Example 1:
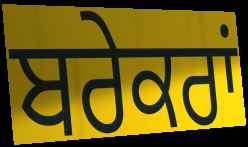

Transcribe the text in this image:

ਬਰੇਕਰਾਂ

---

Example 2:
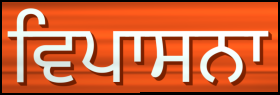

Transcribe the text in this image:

ਵਿਪਾਸਨਾ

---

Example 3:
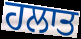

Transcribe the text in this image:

ਹਲਾਤ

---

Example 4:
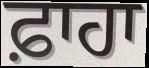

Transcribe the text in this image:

ਫ਼ਾਹਾ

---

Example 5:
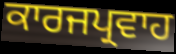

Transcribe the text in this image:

ਕਾਰਜਪ੍ਰਵਾਹ